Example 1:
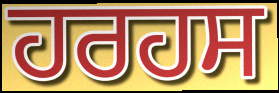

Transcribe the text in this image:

ਹਰਹਸ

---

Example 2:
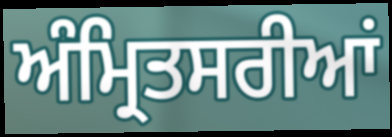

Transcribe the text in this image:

ਅੰਮ੍ਰਿਤਸਰੀਆਂ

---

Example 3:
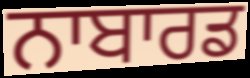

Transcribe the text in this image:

ਨਾਬਾਰਡ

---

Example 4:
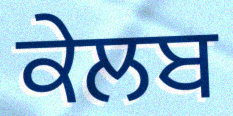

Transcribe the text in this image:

ਕੇਲਬ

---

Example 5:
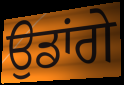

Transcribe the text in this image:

ਉਡਾਂਗੇ